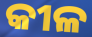
କୀଳ